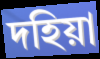
দহিয়া